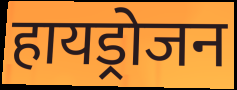
हायड्रोजन